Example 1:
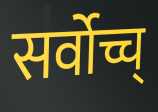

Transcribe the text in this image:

सर्वोच्च्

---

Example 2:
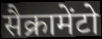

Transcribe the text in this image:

सैक्रामेंटो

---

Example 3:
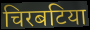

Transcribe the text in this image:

चिरबटिया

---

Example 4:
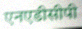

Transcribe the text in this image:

एनएडीसीपी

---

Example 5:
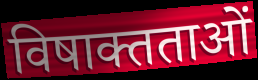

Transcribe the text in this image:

विषाक्तताओं